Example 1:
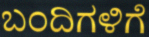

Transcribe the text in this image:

ಬಂದಿಗಳಿಗೆ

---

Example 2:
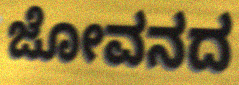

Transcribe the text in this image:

ಜೋವನದ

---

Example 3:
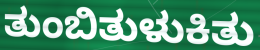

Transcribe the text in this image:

ತುಂಬಿತುಳುಕಿತು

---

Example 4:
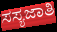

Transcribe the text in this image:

ಸಸ್ಯಜಾತಿ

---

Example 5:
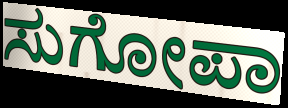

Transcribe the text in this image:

ಸುಗೋಪಾ